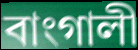
বাংগালী